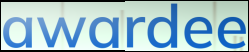
awardee